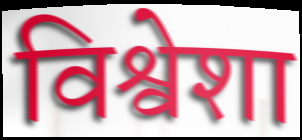
विश्वेशा